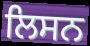
ਲਿਸਨ